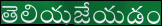
తెలియజేయడం